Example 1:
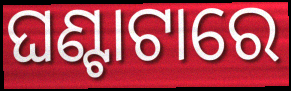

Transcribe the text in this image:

ଘଣ୍ଟାଟାରେ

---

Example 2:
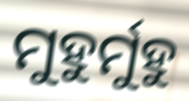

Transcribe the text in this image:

ମୁହୁର୍ମୁହୁ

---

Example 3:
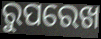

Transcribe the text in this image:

ରୁପରେଖ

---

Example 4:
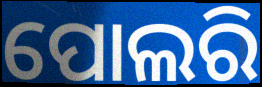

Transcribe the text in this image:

ପୋଲରି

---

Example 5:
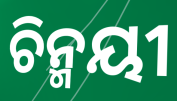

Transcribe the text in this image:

ଚିନ୍ମୟୀ